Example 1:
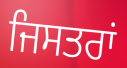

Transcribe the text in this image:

ਜਿਸਤਰਾਂ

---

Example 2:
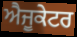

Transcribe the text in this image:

ਐਜੂਕੇਟਰ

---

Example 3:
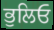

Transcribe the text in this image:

ਭੁਲਿਓ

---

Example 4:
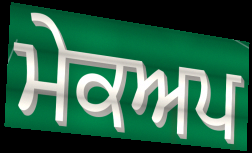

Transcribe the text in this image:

ਮੇਕਅਪ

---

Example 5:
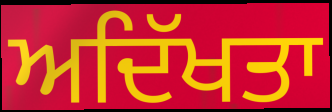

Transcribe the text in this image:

ਅਦਿੱਖਤਾ